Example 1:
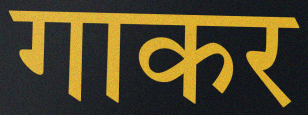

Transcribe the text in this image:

गाकर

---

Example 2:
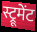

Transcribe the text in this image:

स्ट्रूमेंट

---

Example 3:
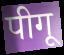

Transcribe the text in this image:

पीगू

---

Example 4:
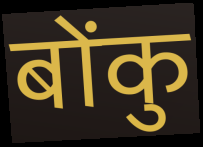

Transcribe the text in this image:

बोंकु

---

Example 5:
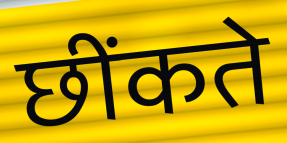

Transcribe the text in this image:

छींकते